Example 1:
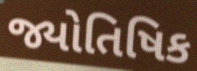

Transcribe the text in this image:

જ્યોતિષિક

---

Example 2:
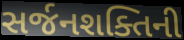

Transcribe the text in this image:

સર્જનશક્તિની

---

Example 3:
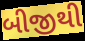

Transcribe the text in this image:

બીજીથી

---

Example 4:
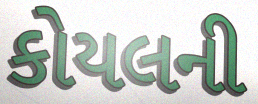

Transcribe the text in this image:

કોયલની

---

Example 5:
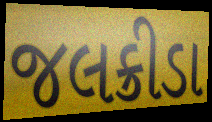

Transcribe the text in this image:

જલક્રીડા